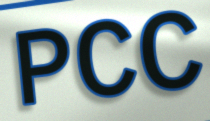
PCC